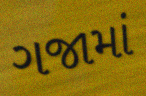
ગજામાં